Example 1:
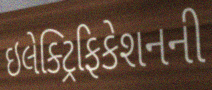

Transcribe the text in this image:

ઇલેક્ટ્રિફિકેશનની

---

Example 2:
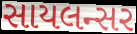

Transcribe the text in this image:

સાયલન્સર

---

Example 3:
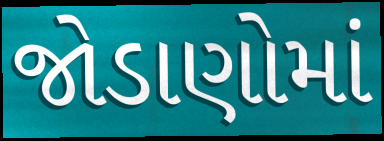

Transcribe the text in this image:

જોડાણોમાં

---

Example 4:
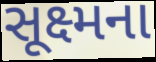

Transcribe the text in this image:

સૂક્ષ્મના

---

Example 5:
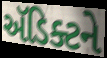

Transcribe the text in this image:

ઍડિક્ટને